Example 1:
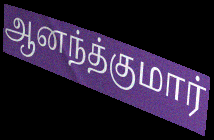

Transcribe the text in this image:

ஆனந்த்குமார்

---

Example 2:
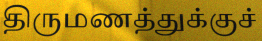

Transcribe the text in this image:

திருமணத்துக்குச்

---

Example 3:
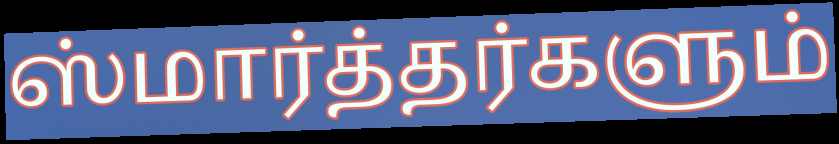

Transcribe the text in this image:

ஸ்மார்த்தர்களும்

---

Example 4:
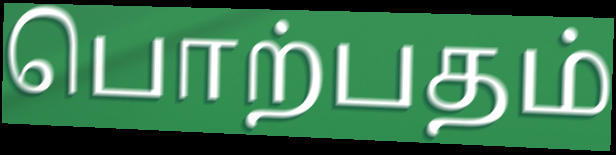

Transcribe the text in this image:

பொற்பதம்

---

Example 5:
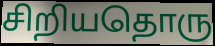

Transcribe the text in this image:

சிறியதொரு